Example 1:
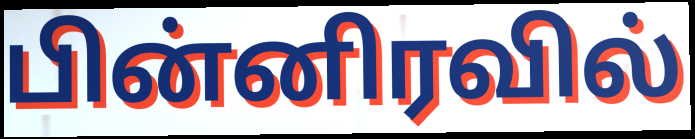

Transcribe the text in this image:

பின்னிரவில்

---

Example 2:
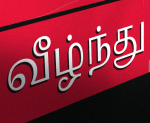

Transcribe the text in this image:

வீழ்ந்து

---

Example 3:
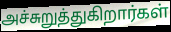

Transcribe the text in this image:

அச்சுறுத்துகிறார்கள்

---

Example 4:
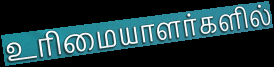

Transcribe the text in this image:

உரிமையாளர்களில்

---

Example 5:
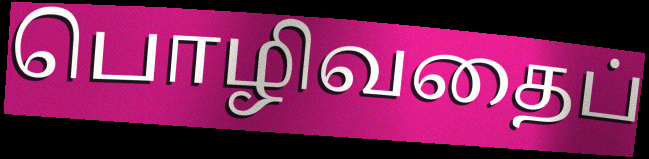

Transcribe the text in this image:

பொழிவதைப்